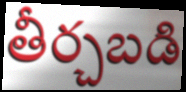
తీర్చబడి